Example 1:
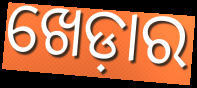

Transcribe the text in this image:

ଖେଡ଼ାର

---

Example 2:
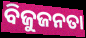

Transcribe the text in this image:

ବିଜୁଜନତା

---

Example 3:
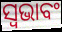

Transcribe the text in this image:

ସ୍ଵଭାବଂ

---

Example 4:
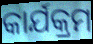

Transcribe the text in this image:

କାର୍ଯକ୍ରମ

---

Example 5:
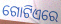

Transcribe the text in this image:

ଗୋଟିଏରେ